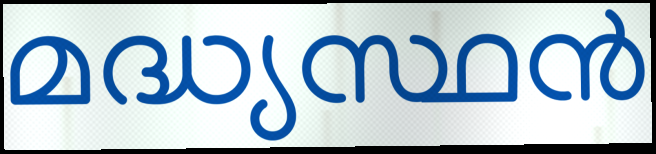
മദ്ധ്യസ്ഥൻ